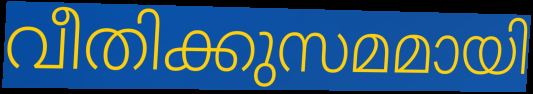
വീതിക്കുസമമായി